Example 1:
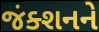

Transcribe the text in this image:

જંક્શનને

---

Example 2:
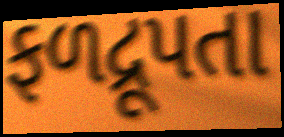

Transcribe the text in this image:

ફળદ્રૂપતા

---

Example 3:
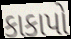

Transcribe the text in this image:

કાકાપો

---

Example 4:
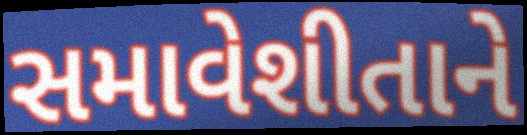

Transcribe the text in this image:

સમાવેશીતાને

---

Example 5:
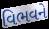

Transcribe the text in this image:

વિભવને